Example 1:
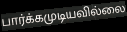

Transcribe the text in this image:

பார்க்கமுடியவில்லை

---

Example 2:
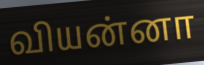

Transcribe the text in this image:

வியன்னா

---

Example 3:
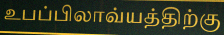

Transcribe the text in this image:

உபப்பிலாவ்யத்திற்கு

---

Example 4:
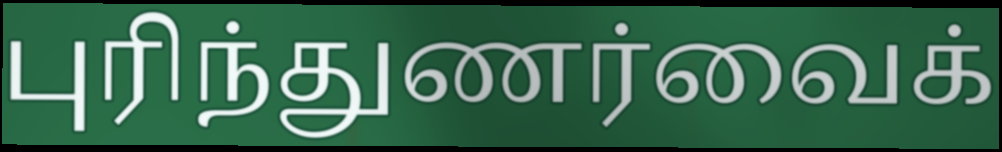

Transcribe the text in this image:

புரிந்துணர்வைக்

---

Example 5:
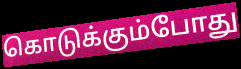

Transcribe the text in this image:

கொடுக்கும்போது